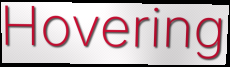
Hovering